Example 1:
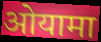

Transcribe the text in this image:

ओयामा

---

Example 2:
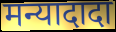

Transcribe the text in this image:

मन्यादादा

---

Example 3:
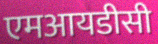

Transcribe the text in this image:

एमआयडीसी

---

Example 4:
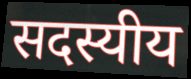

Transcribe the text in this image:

सदस्यीय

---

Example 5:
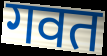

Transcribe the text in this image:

गवत